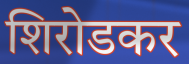
शिरोडकर